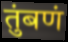
तुंबणं